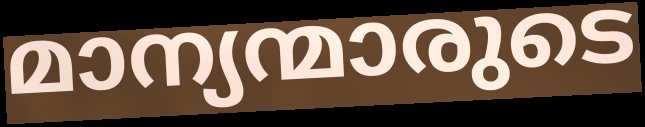
മാന്യന്മാരുടെ